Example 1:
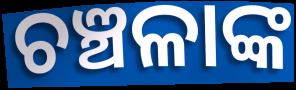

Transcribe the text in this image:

ଚଞ୍ଚଳାଙ୍କ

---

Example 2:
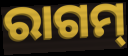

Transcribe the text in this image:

ରାଗମ୍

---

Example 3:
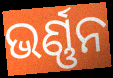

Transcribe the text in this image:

ଭର୍ଣ୍ଣନ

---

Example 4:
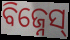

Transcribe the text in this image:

ବିଜ୍ନେସ୍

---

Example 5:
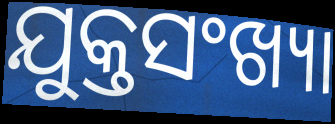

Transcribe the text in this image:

ଯୁକ୍ତସଂଖ୍ୟା